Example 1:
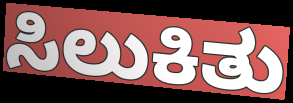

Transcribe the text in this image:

ಸಿಲುಕಿತು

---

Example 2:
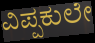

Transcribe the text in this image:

ವಿಪ್ಪಕುಲೇ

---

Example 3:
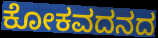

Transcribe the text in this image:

ಕೋಕವದನದ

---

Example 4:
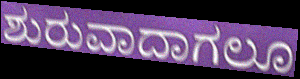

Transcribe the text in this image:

ಶುರುವಾದಾಗಲೂ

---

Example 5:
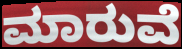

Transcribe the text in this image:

ಮಾರುವೆ